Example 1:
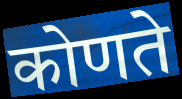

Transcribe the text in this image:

कोणते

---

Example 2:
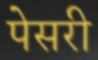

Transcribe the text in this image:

पेसरी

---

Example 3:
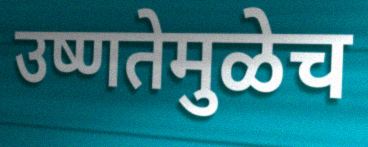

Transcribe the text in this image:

उष्णतेमुळेच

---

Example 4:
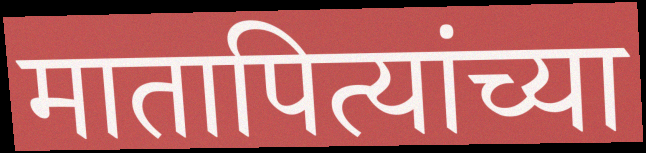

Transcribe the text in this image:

मातापित्यांच्या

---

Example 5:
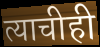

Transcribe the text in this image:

त्याचीही